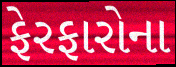
ફેરફારોના